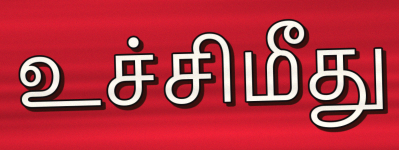
உச்சிமீது